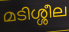
മടിശ്ശീല